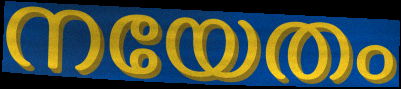
നയേതം